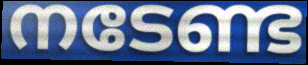
നടേണ്ട